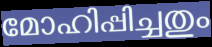
മോഹിപ്പിച്ചതും